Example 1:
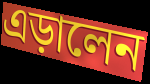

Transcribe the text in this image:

এড়ালেন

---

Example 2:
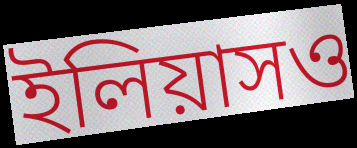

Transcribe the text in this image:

ইলিয়াসও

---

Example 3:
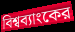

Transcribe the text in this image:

বিশ্বব্যাংকের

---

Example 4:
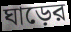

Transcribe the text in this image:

ঘাড়ের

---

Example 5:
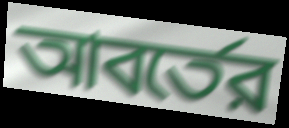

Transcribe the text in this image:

আবর্তের